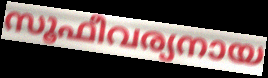
സൂഫീവര്യനായ